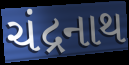
ચંદ્રનાથ